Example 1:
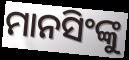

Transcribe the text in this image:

ମାନସିଂଙ୍କୁ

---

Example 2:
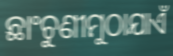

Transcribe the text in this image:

ଛାଂଚୁଣୀମୁଠାଯାଏଁ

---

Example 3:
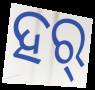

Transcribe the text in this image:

ହର୍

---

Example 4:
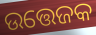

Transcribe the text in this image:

ଉତ୍ତେଜକ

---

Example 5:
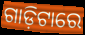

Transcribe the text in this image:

ଗାଡ଼ିଟାରେ